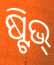
ଷ୍ଟିଭ୍